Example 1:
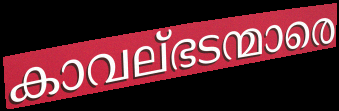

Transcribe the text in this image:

കാവല്ഭടന്മാരെ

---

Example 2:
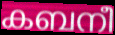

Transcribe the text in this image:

കബനീ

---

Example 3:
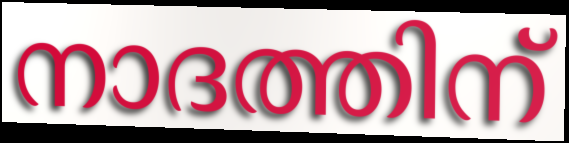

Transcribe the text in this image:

നാദത്തിന്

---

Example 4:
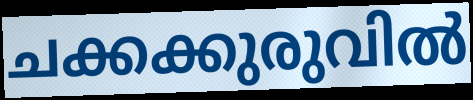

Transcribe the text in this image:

ചക്കക്കുരുവിൽ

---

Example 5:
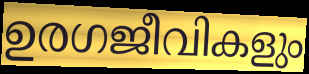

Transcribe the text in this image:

ഉരഗജീവികളും